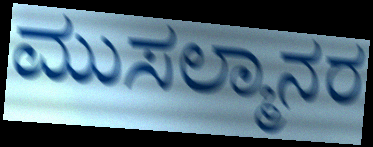
ಮುಸಲ್ಮಾನರ